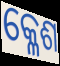
କ୍ଳେଶ